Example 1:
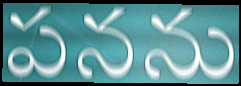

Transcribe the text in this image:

పనను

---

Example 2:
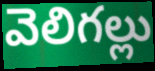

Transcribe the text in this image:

వెలిగల్లు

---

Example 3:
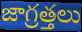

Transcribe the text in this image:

జాగ్రత్తలు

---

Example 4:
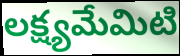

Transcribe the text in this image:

లక్ష్యమేమిటి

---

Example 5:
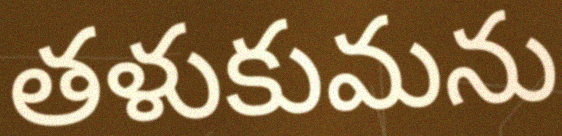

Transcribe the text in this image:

తళుకుమను